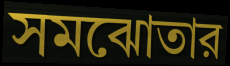
সমঝোতার